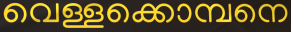
വെള്ളക്കൊമ്പനെ